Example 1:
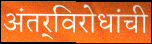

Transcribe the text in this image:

अंतर्विरोधांची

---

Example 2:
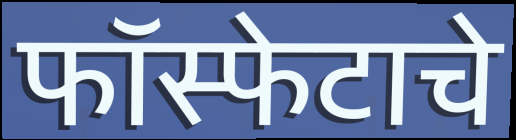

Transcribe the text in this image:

फॉस्फेटाचे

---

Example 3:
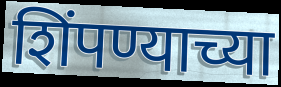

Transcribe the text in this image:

शिंपण्याच्या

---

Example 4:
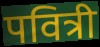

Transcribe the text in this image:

पवित्री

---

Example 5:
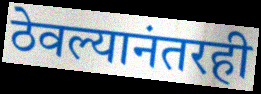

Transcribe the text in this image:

ठेवल्यानंतरही